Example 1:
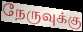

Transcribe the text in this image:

நேருவுக்கு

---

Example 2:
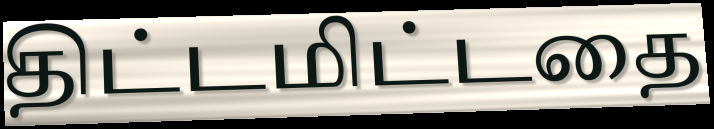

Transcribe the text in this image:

திட்டமிட்டதை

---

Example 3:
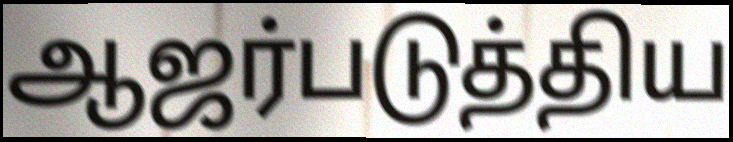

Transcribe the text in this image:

ஆஜர்படுத்திய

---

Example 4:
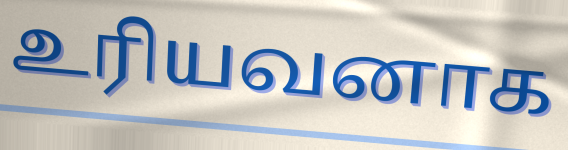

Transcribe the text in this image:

உரியவனாக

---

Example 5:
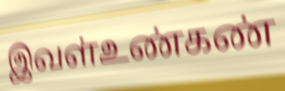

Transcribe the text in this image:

இவள்உண்கண்